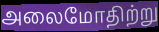
அலைமோதிற்று